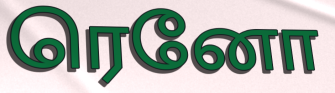
ரெனோ